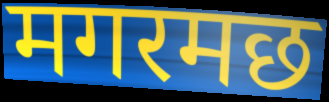
मगरमछ